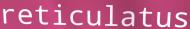
reticulatus